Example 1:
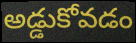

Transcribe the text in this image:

అడ్డుకోవడం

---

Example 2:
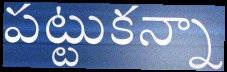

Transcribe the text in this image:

పట్టుకన్నా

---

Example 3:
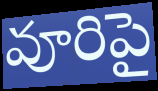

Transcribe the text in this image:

వూరిపై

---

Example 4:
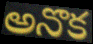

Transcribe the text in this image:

అనొక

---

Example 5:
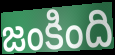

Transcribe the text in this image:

జంకింది